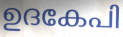
ഉദകേപി